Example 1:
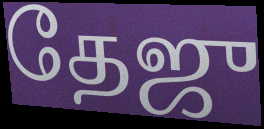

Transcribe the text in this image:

தேஜு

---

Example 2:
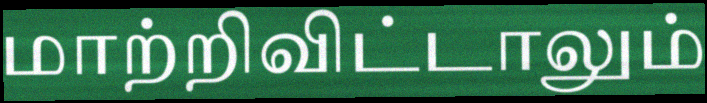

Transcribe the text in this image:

மாற்றிவிட்டாலும்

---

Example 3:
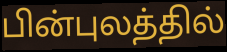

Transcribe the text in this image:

பின்புலத்தில்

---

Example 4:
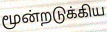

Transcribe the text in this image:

மூன்றடுக்கிய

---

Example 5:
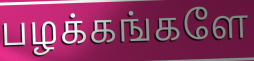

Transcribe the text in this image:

பழக்கங்களே